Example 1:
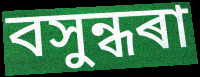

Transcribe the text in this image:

বসুন্ধৰা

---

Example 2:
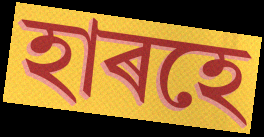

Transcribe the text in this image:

হাৰহে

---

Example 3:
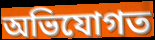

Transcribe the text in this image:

অভিযোগত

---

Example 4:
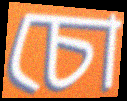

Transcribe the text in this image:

চো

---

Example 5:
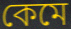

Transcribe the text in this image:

কেমে